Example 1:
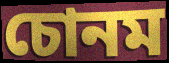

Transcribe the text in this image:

চোনম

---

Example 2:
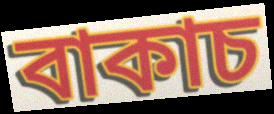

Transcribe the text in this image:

বাকাচ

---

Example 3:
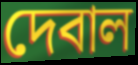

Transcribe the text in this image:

দেবাল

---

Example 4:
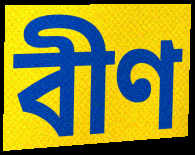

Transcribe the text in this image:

বীণ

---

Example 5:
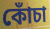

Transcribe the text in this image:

কোঁচা